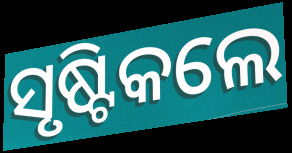
ସୃଷ୍ଟିକଲେ